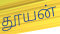
தூயன்